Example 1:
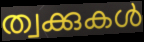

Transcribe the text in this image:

ത്വക്കുകൾ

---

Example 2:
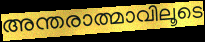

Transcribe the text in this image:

അന്തരാത്മാവിലൂടെ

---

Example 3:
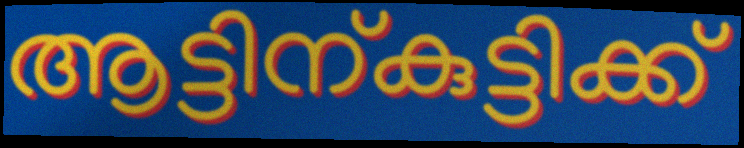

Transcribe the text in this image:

ആട്ടിന്കുട്ടിക്ക്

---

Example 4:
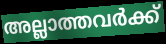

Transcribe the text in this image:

അല്ലാത്തവർക്ക്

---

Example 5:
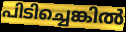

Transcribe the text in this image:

പിടിച്ചെങ്കിൽ